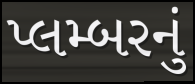
પ્લમ્બરનું